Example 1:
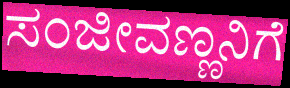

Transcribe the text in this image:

ಸಂಜೀವಣ್ಣನಿಗೆ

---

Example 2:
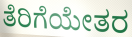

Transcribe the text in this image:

ತೆರಿಗೆಯೇತರ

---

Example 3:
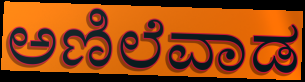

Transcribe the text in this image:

ಅಣಿಲೆವಾಡ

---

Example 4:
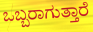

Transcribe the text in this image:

ಒಬ್ಬರಾಗುತ್ತಾರೆ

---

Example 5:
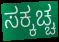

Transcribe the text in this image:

ಸಕ್ಕಚ್ಚ